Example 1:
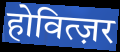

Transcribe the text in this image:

होवित्ज़र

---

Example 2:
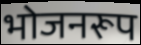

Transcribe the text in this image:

भोजनरूप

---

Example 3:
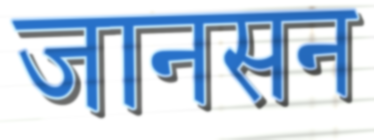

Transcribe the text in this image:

जानसन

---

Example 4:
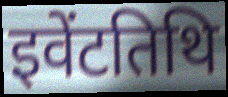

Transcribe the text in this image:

इवेंटतिथि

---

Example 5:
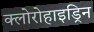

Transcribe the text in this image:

क्लोरोहाइड्रिन